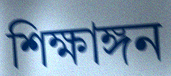
শিক্ষাঙ্গন